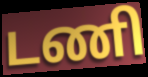
டணி